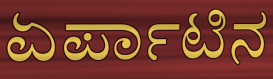
ಏರ್ಪಾಟಿನ